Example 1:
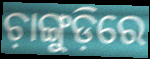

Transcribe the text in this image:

ଚ଼ାଙ୍ଗୁଡ଼ିରେ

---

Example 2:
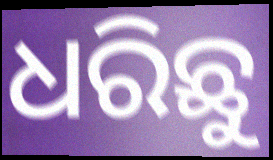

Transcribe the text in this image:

ଧରିଛୁ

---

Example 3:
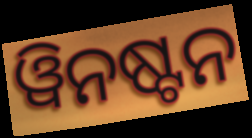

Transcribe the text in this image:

ୱିନଷ୍ଟନ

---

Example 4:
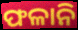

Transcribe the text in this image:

ଫଳାନି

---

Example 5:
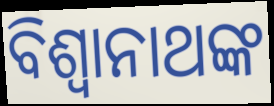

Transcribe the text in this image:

ବିଶ୍ୱାନାଥଙ୍କ